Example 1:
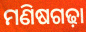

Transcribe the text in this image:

ମଣିଷଗଢ଼ା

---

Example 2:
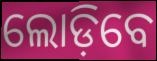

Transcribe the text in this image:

ଲୋଡ଼ିବେ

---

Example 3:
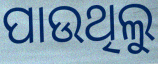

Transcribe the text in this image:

ପାଉଥିଲୁ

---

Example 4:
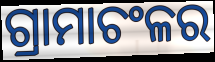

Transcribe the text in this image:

ଗ୍ରାମାଚଂଳର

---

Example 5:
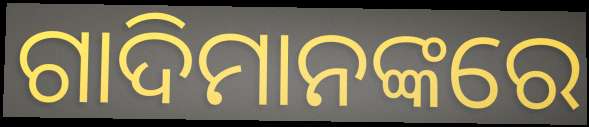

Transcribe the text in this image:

ଗାଦିମାନଙ୍କରେ